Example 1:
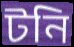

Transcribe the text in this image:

টনি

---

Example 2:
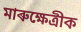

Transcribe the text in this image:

মাৰুক্ষেত্ৰীক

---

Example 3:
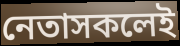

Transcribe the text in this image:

নেতাসকলেই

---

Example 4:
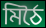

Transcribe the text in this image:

মিঠৈ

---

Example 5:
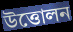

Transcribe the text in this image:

উত্তোলন